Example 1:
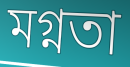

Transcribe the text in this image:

মগ্নতা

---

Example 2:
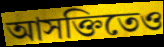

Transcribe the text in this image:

আসক্তিতেও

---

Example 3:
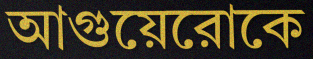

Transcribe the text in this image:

আগুয়েরোকে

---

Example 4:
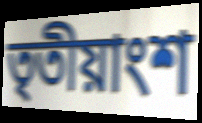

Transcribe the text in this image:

তৃতীয়াংশ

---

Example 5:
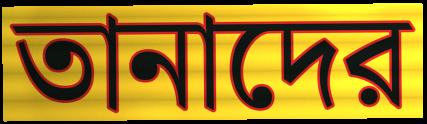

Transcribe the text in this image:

তানাদের